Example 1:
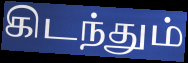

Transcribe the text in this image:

கிடந்தும்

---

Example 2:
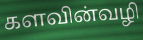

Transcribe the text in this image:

களவின்வழி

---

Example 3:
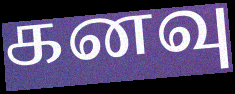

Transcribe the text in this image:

கனவு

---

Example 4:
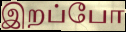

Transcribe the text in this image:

இறப்போ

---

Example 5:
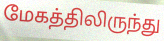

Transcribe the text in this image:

மேகத்திலிருந்து